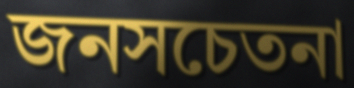
জনসচেতনা